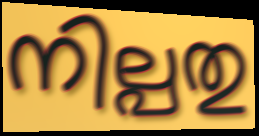
നില്പതു